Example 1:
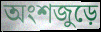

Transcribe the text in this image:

অংশজুড়ে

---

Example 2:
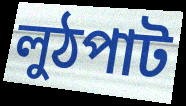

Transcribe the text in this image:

লুঠপাট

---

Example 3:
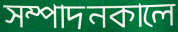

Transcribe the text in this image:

সম্পাদনকালে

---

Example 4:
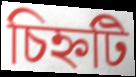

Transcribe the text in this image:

চিহ্নটি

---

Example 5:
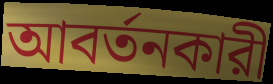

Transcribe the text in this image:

আবর্তনকারী